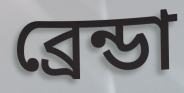
ব্রেন্ডা